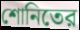
শোনিতের